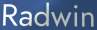
Radwin